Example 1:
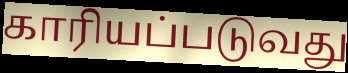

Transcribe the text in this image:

காரியப்படுவது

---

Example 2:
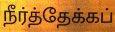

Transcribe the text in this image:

நீர்த்தேக்கப்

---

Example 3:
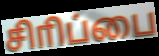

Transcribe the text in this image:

சிரிப்பை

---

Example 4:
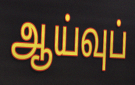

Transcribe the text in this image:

ஆய்வுப்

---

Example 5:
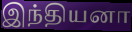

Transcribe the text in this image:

இந்தியனா